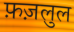
फ़ज़लुल